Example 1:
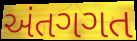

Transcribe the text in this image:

અંતગગત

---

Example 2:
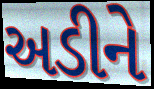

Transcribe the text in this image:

અડીને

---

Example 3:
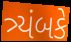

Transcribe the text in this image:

ત્ર્યંબકે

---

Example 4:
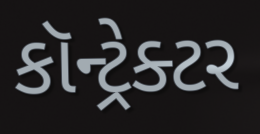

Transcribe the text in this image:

કૉન્ટ્રેક્ટર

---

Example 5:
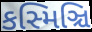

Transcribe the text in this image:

કસ્મિઞ્ચિ